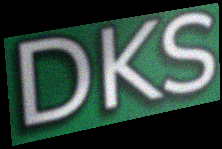
DKS